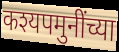
कश्यपमुनींच्या